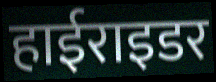
हाईराइडर